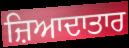
ਜ਼ਿਆਦਾਤਾਰ